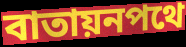
বাতায়নপথে